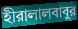
হীরালালবাবুর